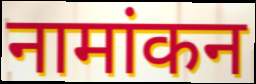
नामांकन